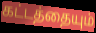
கட்டத்தையும்